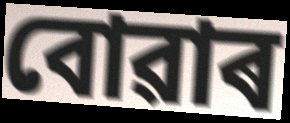
বোৱাৰ